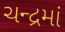
ચન્દ્રમાં